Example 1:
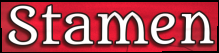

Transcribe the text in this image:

Stamen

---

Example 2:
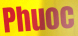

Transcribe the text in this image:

Phuoc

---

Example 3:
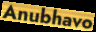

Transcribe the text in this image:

Anubhavo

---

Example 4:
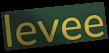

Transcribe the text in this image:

levee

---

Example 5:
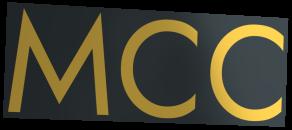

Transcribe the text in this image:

MCC